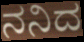
ನನಿದ